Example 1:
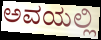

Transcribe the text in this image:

ಅವಯಲ್ಲಿ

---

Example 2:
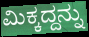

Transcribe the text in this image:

ಮಿಕ್ಕದ್ದನ್ನು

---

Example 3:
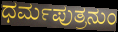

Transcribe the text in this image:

ಧರ್ಮಪುತ್ರನುಂ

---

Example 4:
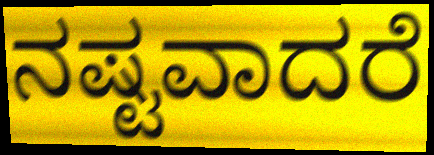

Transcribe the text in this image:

ನಷ್ಟವಾದರೆ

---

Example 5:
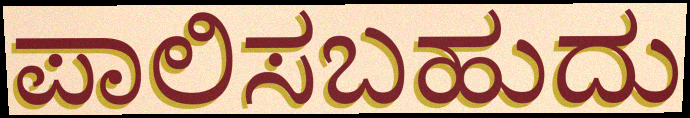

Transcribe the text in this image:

ಪಾಲಿಸಬಹುದು